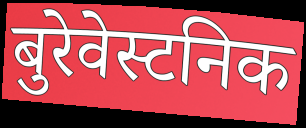
बुरेवेस्टनिक